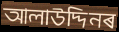
আলাউদ্দিনৰ